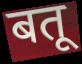
बतू